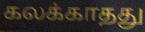
கலக்காதது